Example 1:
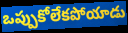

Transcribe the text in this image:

ఒప్పుకోలేకపోయాడు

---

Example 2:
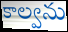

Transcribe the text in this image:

కాల్వను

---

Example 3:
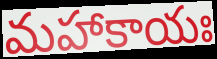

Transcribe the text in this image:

మహాకాయః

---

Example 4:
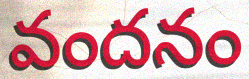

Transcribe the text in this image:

వందనం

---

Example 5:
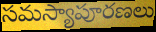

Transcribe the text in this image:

సమస్యాపూరణలు